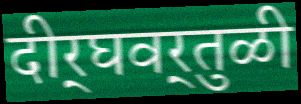
दीर्घवर्तुळी